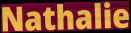
Nathalie